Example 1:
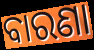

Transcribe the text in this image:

ବାରଣା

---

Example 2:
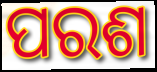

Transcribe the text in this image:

ପରଶ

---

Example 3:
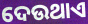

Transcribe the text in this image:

ଦେଉଥାଏ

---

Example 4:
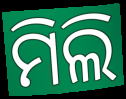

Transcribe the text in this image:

ମିଲି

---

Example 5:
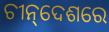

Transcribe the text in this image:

ଚୀନ୍‌ଦେଶରେ